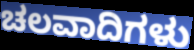
ಚಲವಾದಿಗಳು